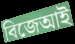
বিজেআই